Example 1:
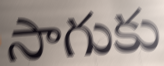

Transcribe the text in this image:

సాగుకు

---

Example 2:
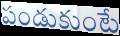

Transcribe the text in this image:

పండుకుంటే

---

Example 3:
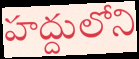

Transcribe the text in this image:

హద్దులోని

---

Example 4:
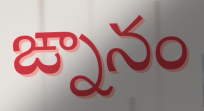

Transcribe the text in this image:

ఙ్నానం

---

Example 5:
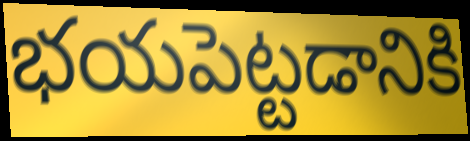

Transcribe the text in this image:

భయపెట్టడానికి